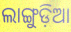
ଲାଙ୍ଗୁଡ଼ିଆ